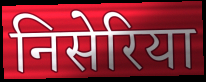
निसेरिया